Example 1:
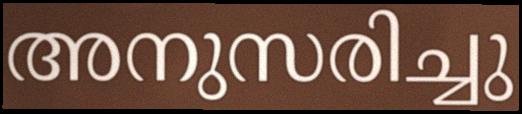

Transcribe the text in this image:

അനുസരിച്ചു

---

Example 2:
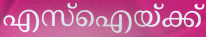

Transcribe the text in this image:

എസ്ഐയ്ക്ക്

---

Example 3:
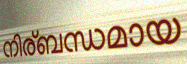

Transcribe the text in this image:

നിര്ബന്ധമായ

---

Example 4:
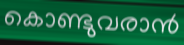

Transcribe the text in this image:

കൊണ്ടുവരാൻ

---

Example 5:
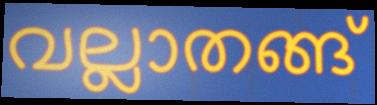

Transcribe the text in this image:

വല്ലാതങ്ങ്